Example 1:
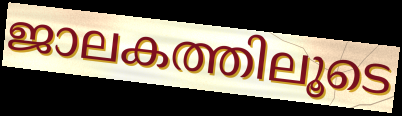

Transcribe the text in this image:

ജാലകത്തിലൂടെ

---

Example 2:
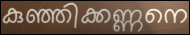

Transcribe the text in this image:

കുഞ്ഞിക്കണ്ണനെ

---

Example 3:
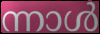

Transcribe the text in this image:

ന്നാൾ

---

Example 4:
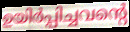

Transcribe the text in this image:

ഉയിർപ്പിച്ചവന്റെ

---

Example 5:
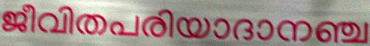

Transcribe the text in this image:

ജീവിതപരിയാദാനഞ്ച